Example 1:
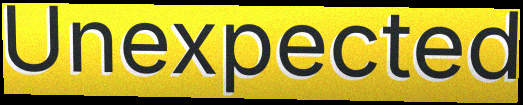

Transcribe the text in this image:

Unexpected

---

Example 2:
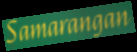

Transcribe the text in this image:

Samarangan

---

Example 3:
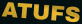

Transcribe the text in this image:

ATUFS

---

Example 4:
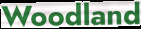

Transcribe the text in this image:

Woodland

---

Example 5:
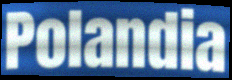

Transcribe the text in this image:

Polandia